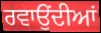
ਰਵਾਉਂਦੀਆਂ